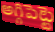
అగ్గిపెట్టె